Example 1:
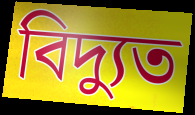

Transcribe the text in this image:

বিদ্যুত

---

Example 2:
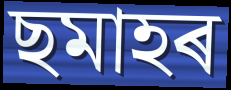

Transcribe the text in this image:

ছমাহৰ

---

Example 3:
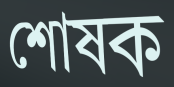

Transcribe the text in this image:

শোষক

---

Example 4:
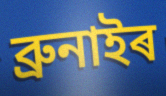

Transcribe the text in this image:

ব্ৰুনাইৰ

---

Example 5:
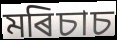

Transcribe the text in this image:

মৰিচাচ